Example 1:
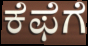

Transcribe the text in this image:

ಕೆಫೆಗೆ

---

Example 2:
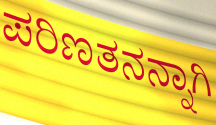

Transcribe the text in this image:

ಪರಿಣತನನ್ನಾಗಿ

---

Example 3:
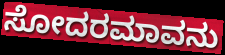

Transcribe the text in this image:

ಸೋದರಮಾವನು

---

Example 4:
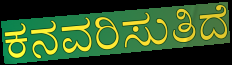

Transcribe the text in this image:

ಕನವರಿಸುತಿದೆ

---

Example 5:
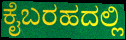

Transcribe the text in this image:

ಕೈಬರಹದಲ್ಲಿ